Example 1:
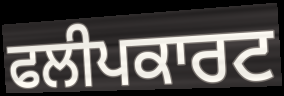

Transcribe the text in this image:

ਫਲੀਪਕਾਰਟ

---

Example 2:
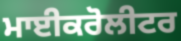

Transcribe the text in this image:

ਮਾਈਕਰੋਲੀਟਰ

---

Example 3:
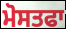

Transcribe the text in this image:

ਮੋਸਤਫਾ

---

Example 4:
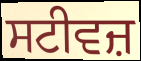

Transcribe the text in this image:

ਸਟੀਵਜ਼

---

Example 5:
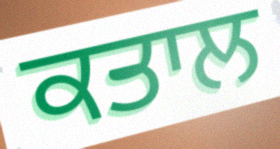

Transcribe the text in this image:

ਕਤਾਲ